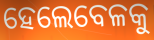
ହେଲେବେଳକୁ